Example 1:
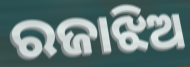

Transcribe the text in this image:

ରଜାଝିଅ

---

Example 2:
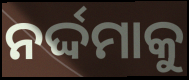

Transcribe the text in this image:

ନର୍ଦ୍ଦମାକୁ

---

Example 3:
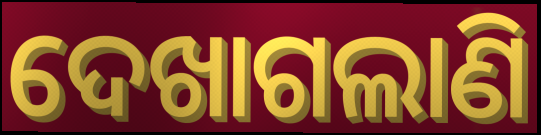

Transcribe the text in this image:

ଦେଖାଗଲାଣି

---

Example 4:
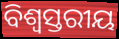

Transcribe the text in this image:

ବିଶ୍ବସ୍ତରୀୟ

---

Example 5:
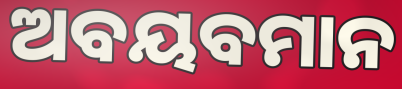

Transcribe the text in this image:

ଅବୟବମାନ